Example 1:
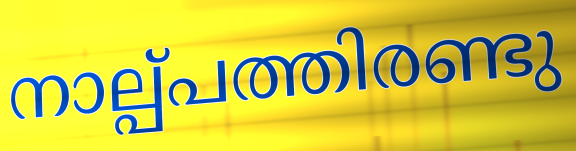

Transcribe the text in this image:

നാല്പ്പത്തിരണ്ടു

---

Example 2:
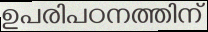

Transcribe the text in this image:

ഉപരിപഠനത്തിന്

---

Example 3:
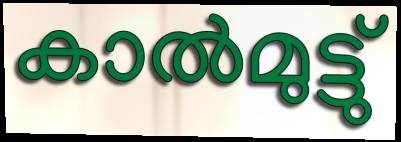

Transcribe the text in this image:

കാൽമുട്ടു്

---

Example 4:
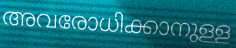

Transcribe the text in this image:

അവരോധിക്കാനുള്ള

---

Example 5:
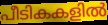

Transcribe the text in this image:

പീടികകളിൽ